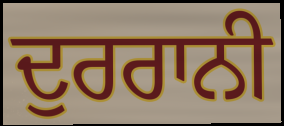
ਦੁਰਰਾਨੀ